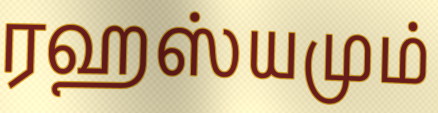
ரஹஸ்யமும்